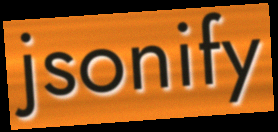
jsonify